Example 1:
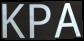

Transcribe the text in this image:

KPA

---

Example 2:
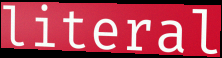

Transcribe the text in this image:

literal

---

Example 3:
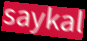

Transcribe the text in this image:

saykal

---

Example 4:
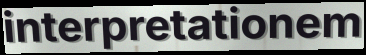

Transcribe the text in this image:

interpretationem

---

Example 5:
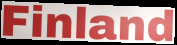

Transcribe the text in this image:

Finland